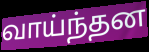
வாய்ந்தன